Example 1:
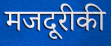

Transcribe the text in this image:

मजदूरीकी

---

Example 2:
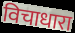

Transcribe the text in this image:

विचाधारा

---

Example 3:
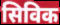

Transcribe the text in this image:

सिविक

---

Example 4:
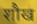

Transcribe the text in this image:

शौख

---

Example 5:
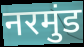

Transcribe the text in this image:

नरमुंड